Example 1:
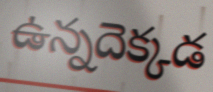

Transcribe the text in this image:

ఉన్నదెక్కడ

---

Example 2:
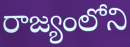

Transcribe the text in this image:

రాజ్యంలోని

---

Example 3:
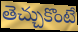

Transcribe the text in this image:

తెచ్చుకొంటే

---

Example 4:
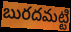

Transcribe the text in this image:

బురదమట్టి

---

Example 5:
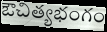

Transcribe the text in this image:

ఔచిత్యభంగం